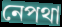
নেপথা